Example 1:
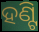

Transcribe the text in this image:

ହଣ୍ଟି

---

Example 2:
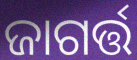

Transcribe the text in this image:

ଜାଗର୍ତ୍ତ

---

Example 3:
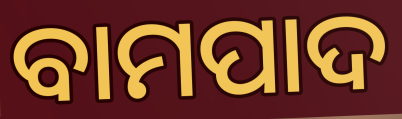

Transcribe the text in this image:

ବାମପାଦ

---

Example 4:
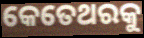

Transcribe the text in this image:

କେତେଥରକୁ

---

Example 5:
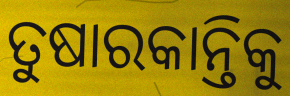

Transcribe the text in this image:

ତୁଷାରକାନ୍ତିକୁ